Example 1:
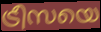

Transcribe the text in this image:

ട്രീസയെ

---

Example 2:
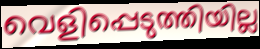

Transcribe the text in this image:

വെളിപ്പെടുത്തിയില്ല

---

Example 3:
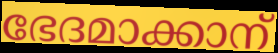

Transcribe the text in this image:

ഭേദമാക്കാന്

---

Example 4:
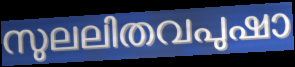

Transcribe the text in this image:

സുലലിതവപുഷാ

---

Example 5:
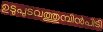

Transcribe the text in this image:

ഉടുപുടവത്തുമ്പിൻപിടി